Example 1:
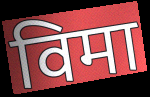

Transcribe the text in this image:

विमा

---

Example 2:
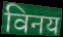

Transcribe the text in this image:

विनय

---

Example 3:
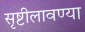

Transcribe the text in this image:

सृष्टीलावण्या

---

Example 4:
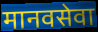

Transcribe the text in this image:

मानवसेवा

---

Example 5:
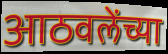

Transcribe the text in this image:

आठवलेंच्या